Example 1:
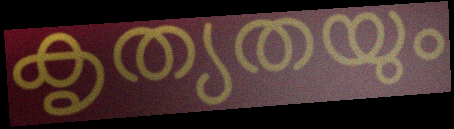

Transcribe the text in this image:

കൃത്യതയും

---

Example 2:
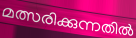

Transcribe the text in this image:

മത്സരിക്കുന്നതിൽ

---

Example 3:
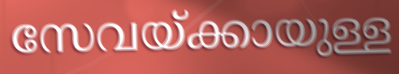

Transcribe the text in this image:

സേവയ്ക്കായുള്ള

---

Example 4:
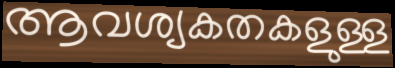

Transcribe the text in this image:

ആവശ്യകതകളുള്ള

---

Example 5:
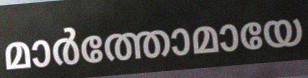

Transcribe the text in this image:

മാർത്തോമായേ